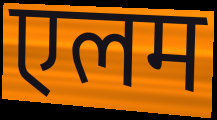
एलम